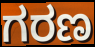
ಗರಣ